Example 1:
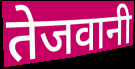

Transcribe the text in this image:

तेजवानी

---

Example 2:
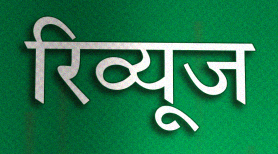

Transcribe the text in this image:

रिव्यूज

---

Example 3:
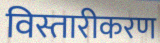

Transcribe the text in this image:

विस्तारीकरण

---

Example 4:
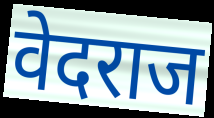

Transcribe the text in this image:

वेदराज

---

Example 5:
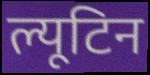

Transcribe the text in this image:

ल्यूटिन